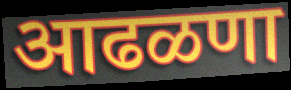
आढळणा